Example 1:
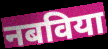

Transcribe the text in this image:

नबविया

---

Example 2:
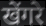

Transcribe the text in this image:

खेंगरे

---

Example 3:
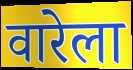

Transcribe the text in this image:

वारेला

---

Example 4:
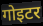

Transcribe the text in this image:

गोइटर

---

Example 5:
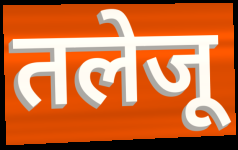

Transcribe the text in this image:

तलेजू